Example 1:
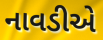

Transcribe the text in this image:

નાવડીએ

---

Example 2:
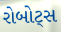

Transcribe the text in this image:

રોબોટ્સ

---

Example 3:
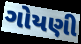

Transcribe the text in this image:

ગોયણી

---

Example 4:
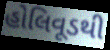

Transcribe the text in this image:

હોલિવૂડથી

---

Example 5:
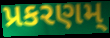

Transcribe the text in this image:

પ્રકરણમ્